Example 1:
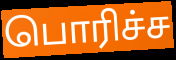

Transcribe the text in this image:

பொரிச்ச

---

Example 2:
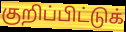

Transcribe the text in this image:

குறிப்பிட்டுக்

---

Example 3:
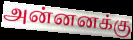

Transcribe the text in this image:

அன்னனக்கு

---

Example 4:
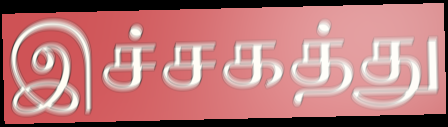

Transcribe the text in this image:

இச்சகத்து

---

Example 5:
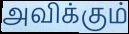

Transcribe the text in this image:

அவிக்கும்